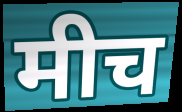
मीच